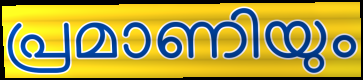
പ്രമാണിയും